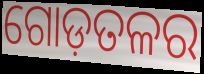
ଗୋଡ଼ତଳର